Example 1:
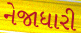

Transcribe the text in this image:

નેજાધારી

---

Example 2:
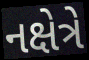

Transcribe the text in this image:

નક્ષેત્રે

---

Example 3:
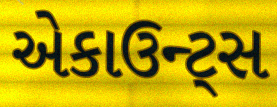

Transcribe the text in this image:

એકાઉન્ટ્સ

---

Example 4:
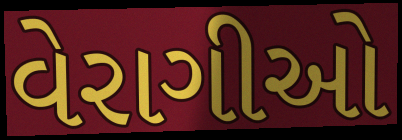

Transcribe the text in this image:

વેરાગીઓ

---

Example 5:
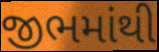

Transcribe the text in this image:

જીભમાંથી